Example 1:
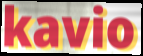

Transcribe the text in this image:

kavio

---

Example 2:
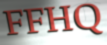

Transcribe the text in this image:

FFHQ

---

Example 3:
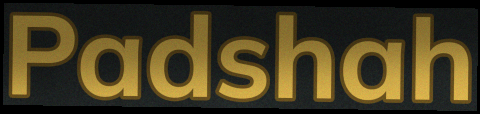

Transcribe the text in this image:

Padshah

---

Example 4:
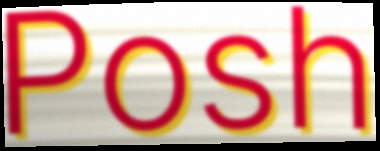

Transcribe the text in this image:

Posh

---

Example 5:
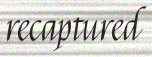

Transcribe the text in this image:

recaptured